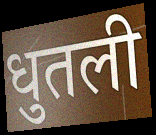
धुतली